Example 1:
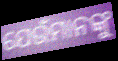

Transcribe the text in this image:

ଯେଉଁମାନଙ୍କୁ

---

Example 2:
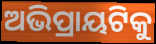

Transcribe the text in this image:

ଅଭିପ୍ରାୟଟିକୁ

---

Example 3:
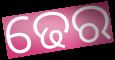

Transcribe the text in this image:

ଢେର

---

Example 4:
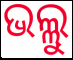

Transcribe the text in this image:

ଭଲ୍ଲୁ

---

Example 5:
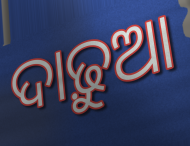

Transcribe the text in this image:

ଦାଢ଼ୁଆ